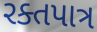
રક્તપાત્ર